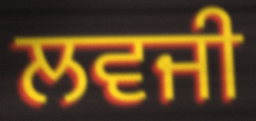
ਲਵਜੀ